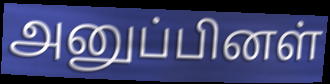
அனுப்பினள்